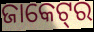
ଜାକେଟ୍‌ର